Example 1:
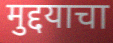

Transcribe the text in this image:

मुद्दयाचा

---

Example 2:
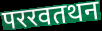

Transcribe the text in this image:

पररवतथन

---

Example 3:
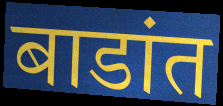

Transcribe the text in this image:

बाडांत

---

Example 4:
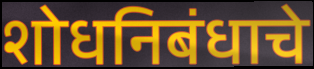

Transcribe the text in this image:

शोधनिबंधाचे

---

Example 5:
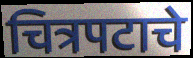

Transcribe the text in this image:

चित्रपटाचे